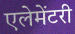
एलेमेंटरी